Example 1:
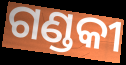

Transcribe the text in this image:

ଗଣ୍ଡକୀ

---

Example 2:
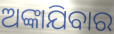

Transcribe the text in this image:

ଅଙ୍କାଯିବାର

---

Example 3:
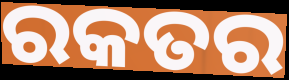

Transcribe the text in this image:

ରକତର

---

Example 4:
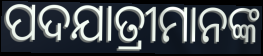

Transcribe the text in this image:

ପଦଯାତ୍ରୀମାନଙ୍କ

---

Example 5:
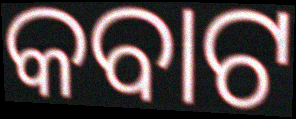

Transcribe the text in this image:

କବାଟ